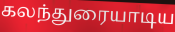
கலந்துரையாடிய